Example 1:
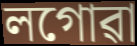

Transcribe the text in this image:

লগোৱা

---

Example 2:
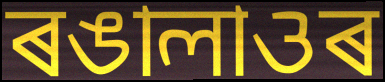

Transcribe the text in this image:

ৰঙালাওৰ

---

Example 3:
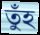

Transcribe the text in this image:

তুঁহ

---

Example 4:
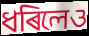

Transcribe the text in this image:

ধৰিলেও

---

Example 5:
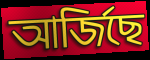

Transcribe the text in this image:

আৰ্জিছে